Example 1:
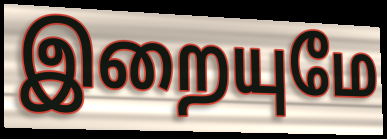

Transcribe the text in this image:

இறையுமே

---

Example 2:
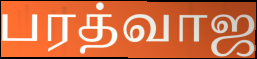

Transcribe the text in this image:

பரத்வாஜ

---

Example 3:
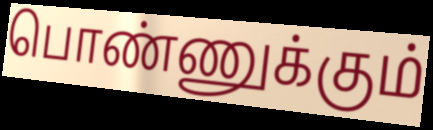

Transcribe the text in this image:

பொண்ணுக்கும்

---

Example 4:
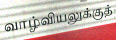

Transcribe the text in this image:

வாழ்வியலுக்குத்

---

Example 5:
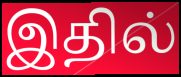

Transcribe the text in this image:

இதில்